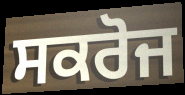
ਸਕਰੋਜ